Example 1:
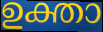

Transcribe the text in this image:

ഉക്താ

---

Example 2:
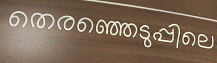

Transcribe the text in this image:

തെരഞ്ഞെടുപ്പിലെ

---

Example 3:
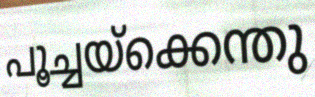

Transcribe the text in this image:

പൂച്ചയ്ക്കെന്തു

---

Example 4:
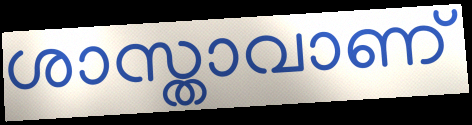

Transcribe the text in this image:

ശാസ്താവാണ്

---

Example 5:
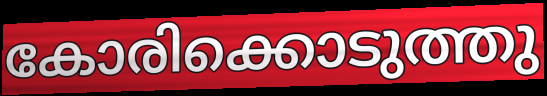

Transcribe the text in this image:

കോരിക്കൊടുത്തു